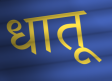
धातू